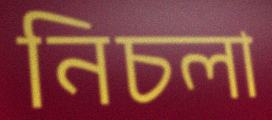
নিচলা